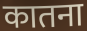
कातना